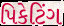
પિકેટિંગ